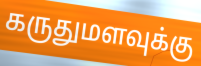
கருதுமளவுக்கு